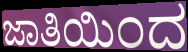
ಜಾತಿಯಿಂದ